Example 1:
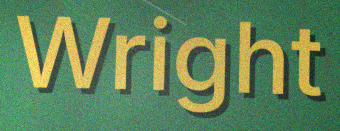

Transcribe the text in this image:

Wright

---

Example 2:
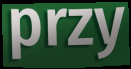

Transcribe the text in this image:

przy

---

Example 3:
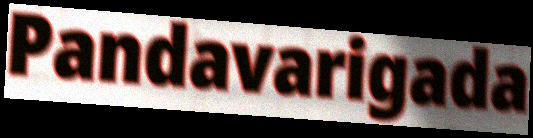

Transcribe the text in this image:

Pandavarigada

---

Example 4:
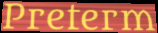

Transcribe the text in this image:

Preterm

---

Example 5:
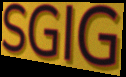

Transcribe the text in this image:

SGIG